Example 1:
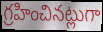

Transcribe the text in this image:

గ్రహించినట్లుగా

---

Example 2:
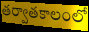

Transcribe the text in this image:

తర్వాతకాలంలో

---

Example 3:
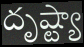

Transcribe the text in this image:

దృష్ట్యా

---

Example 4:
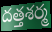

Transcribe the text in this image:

దత్తశర్మ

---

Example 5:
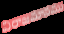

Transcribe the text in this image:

విరాజమానము